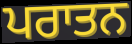
ਪਰਾਤਨ